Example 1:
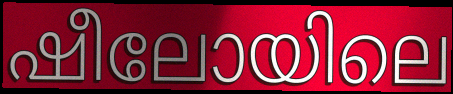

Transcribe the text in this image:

ഷീലോയിലെ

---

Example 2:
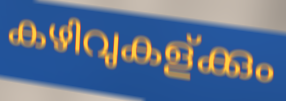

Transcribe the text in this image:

കഴിവുകള്ക്കും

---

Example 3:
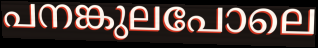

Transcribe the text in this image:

പനങ്കുലപോലെ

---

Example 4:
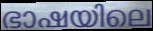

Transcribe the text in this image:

ഭാഷയിലെ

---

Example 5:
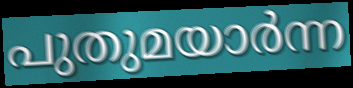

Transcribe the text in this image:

പുതുമയാർന്ന